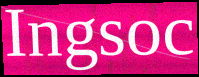
Ingsoc